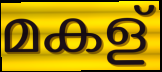
മകള്